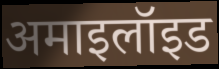
अमाइलॉइड